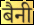
बैनी